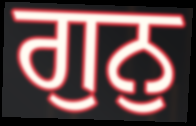
ਗੁਨੁ